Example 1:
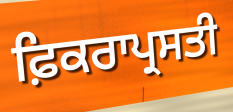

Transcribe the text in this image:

ਫ਼ਿਕਰਾਪ੍ਰਸਤੀ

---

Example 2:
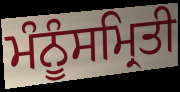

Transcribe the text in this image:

ਮੰਨੂੰਸਮ੍ਰਿਤੀ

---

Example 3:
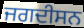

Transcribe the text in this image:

ਜਗਦੀਸਨ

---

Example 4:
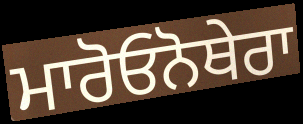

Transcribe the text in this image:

ਮਾਰੋਓਨੋਥੇਰਾ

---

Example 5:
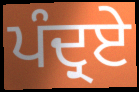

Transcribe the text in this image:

ਪੰਦ੍ਰਏ